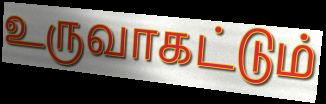
உருவாகட்டும்